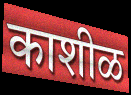
काशीळ